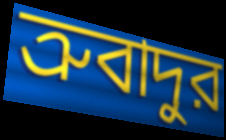
ত্রুবাদুর